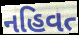
નહિવત્‍